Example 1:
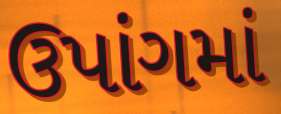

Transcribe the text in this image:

ઉપાંગમાં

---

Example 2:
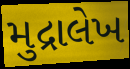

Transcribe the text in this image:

મુદ્રાલેખ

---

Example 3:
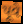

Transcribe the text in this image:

પૂવે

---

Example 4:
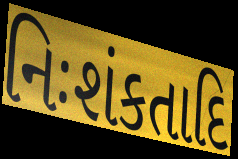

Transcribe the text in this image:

નિઃશંકતાદિ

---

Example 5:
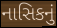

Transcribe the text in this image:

નાસિકનું